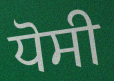
ਧੋਸੀ